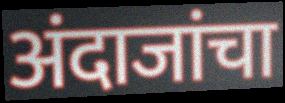
अंदाजांचा